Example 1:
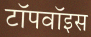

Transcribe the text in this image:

टॉपवॉइस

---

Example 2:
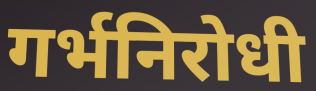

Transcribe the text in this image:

गर्भनिरोधी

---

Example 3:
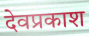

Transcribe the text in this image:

देवप्रकाश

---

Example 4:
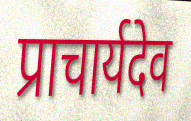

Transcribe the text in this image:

प्राचार्यदेव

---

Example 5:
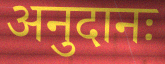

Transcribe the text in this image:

अनुदानः